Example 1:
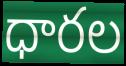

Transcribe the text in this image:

ధారల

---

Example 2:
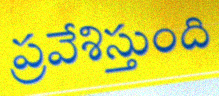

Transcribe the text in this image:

ప్రవేశిస్తుంది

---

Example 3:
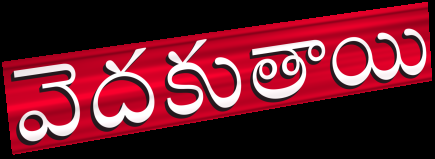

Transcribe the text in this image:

వెదకుతాయి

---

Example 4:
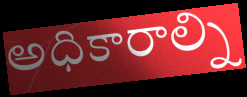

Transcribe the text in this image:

అధికారాల్ని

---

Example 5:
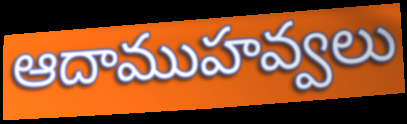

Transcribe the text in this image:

ఆదాముహవ్వలు